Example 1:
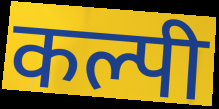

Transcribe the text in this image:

कल्पी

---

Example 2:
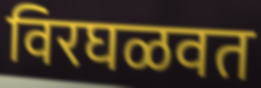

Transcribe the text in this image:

विरघळवत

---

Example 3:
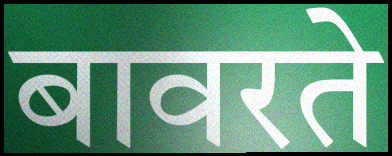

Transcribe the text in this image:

बावरते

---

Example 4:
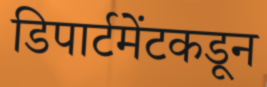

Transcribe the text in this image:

डिपार्टमेंटकडून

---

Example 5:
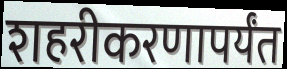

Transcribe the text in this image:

शहरीकरणापर्यंत